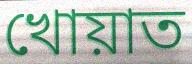
খোয়াত